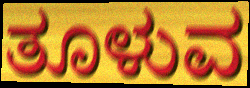
ತೂಳುವ